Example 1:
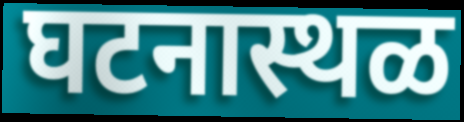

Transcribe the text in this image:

घटनास्थळ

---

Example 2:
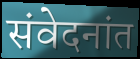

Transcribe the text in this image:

संवेदनांत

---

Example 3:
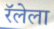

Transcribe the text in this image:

रॅलेला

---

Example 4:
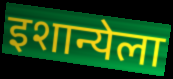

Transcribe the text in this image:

इशान्येला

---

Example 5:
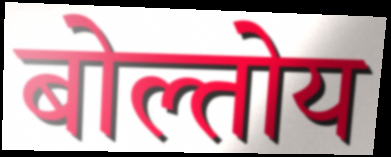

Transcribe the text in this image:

बोल्तोय